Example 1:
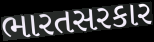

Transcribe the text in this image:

ભારતસરકાર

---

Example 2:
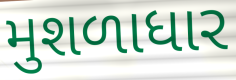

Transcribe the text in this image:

મુશળાધાર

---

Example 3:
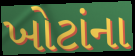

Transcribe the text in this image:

ખોટાંના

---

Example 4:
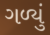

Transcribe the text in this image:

ગળ્યું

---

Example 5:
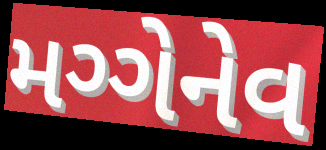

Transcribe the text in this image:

મગ્ગેનેવ